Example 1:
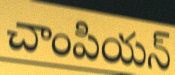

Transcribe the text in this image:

చాంపియన్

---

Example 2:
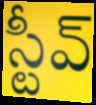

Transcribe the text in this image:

స్టీవ్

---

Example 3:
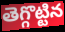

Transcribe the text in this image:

తెగ్గొట్టిన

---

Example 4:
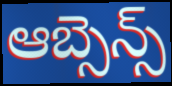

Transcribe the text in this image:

ఆబ్సెన్స్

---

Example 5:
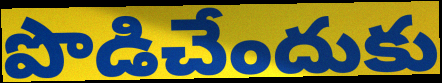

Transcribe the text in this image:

పొడిచేందుకు